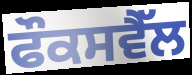
ਫੌਕਸਵੈੱਲ